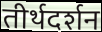
तीर्थदर्शन